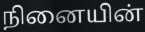
நினையின்